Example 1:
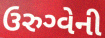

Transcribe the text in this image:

ઉરુગ્વેની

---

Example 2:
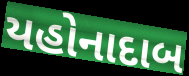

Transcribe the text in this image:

યહોનાદાબ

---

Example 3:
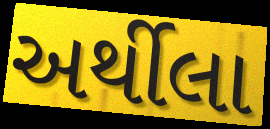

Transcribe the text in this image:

અર્થીલા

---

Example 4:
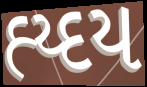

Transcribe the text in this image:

હ્ય્દય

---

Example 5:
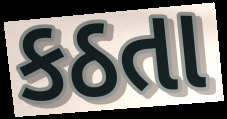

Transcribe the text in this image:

કઠતા